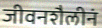
जीवनशैलीनं